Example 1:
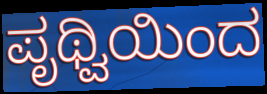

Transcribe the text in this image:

ಪೃಥ್ವಿಯಿಂದ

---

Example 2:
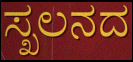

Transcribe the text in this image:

ಸ್ಖಲನದ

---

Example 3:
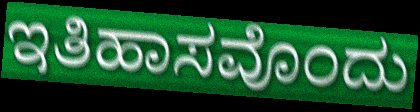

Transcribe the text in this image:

ಇತಿಹಾಸವೊಂದು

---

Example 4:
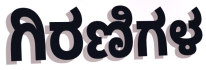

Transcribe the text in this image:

ಗಿರಣಿಗಳ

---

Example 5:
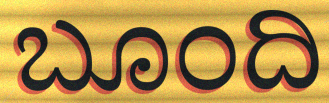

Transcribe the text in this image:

ಬೂಂದಿ